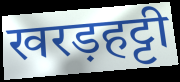
खरड़हट्टी